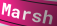
Marsh